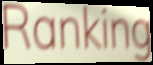
Ranking